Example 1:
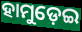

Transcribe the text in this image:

ହାମୁଡ଼େଇ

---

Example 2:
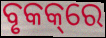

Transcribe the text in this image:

ବୃକକ୍‌ରେ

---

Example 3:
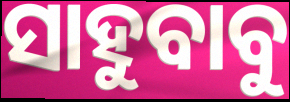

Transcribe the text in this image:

ସାହୁବାବୁ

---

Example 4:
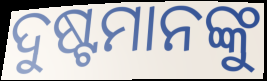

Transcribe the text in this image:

ଦୁଷ୍ଟମାନଙ୍କୁ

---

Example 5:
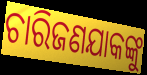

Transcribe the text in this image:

ଚାରିଜଣଯାକଙ୍କୁ